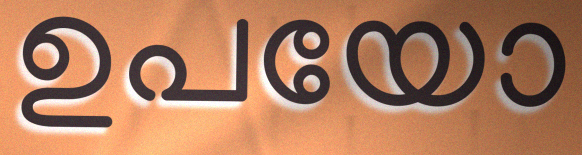
ഉപയോ